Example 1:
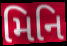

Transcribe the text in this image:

મિનિ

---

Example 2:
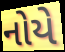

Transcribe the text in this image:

નોયે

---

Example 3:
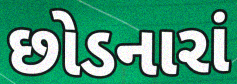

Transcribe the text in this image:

છોડનારાં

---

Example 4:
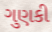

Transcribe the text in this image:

ગુણકી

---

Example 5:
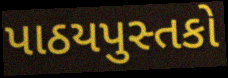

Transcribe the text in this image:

પાઠયપુસ્તકો